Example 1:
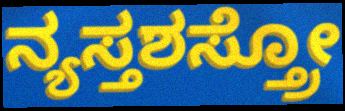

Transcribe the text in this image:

ನ್ಯಸ್ತಶಸ್ತ್ರೋ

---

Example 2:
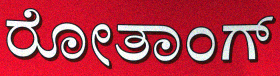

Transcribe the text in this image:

ರೋತಾಂಗ್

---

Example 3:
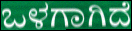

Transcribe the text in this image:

ಒಳಗಾಗಿದೆ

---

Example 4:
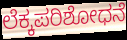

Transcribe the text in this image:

ಲೆಕ್ಕಪರಿಶೋಧನೆ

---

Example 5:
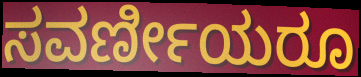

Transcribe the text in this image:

ಸವರ್ಣೀಯರೂ